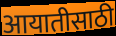
आयातीसाठी